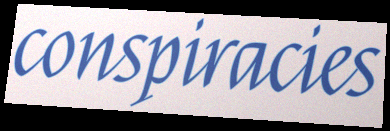
conspiracies